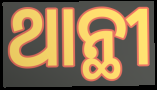
ଥାନ୍ଥୀ